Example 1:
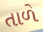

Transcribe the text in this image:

તાળે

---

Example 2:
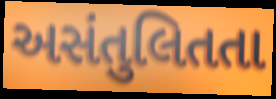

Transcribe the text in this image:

અસંતુલિતતા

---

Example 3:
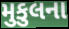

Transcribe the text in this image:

મુકુલના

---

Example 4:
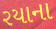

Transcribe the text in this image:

રયાના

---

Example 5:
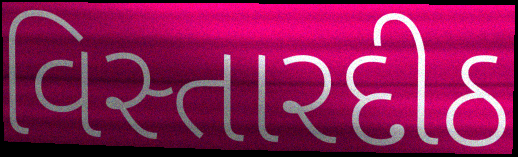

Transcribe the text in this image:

વિસ્તારદીઠ